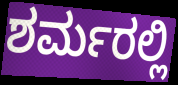
ಶರ್ಮರಲ್ಲಿ